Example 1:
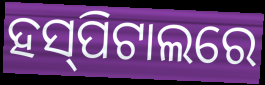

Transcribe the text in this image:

ହସ୍‍ପିଟାଲରେ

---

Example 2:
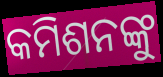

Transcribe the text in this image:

କମିଶନଙ୍କୁ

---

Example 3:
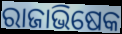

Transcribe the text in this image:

ରାଜାଭିଷେକ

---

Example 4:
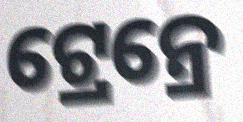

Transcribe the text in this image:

ଟ୍ରେନ୍ରେ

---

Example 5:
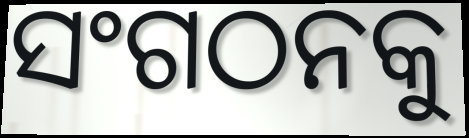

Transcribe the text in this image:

ସଂଗଠନକୁ